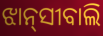
ଝାନ୍‌ସୀବାଲି